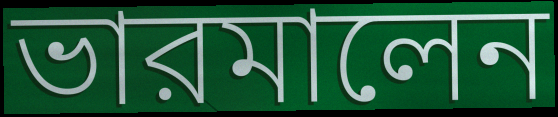
ভারমালেন